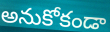
అనుకోకండా